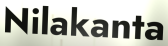
Nilakanta